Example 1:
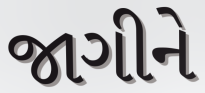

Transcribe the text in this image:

જાગીને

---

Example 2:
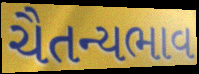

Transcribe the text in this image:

ચૈતન્યભાવ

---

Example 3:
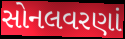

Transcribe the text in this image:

સોનલવરણાં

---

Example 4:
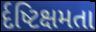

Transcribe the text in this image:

ર્દષ્ટિક્ષમતા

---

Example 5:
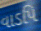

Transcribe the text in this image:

વાઽપિ